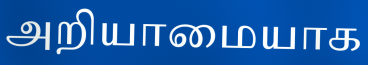
அறியாமையாக